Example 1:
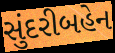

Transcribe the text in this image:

સુંદરીબહેન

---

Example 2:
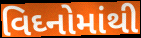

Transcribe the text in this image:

વિઘ્નોમાંથી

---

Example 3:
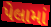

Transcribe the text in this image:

પેલામાં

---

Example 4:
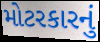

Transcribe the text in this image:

મોટરકારનું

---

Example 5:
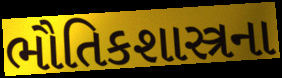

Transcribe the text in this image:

ભૌતિકશાસ્ત્રના